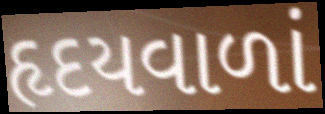
હૃદયવાળાં